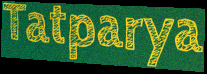
Tatparya